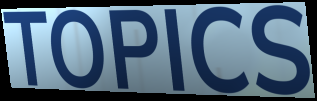
TOPICS